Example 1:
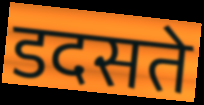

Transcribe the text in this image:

डदसते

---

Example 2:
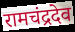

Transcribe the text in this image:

रामचंद्रदेव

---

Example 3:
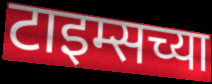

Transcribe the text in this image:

टाइम्सच्या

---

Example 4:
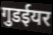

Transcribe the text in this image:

गुडईयर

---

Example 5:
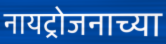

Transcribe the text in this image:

नायट्रोजनाच्या